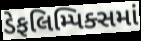
ડેફલિમ્પિક્સમાં